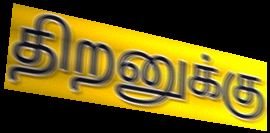
திறனுக்கு